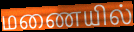
மணையில்